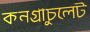
কনগ্রাচুলেট